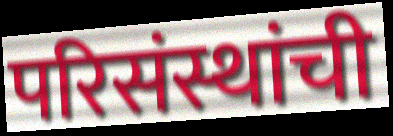
परिसंस्थांची